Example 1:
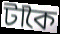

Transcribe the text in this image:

টাকৈ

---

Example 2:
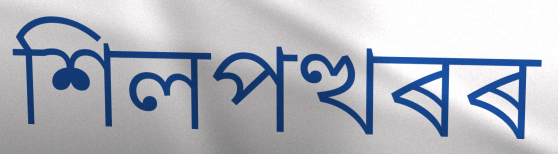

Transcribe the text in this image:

শিলপত্থৰৰ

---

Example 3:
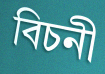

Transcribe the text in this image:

বিচনী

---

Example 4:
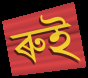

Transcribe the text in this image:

ৰুই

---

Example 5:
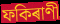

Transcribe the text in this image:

ফকিৰাণী